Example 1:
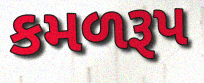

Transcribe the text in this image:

કમળરૂપ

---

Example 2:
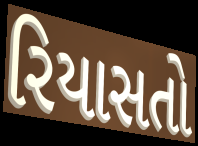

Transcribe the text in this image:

રિયાસતો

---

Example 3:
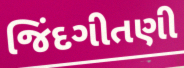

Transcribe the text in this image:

જિંદગીતણી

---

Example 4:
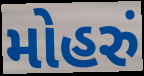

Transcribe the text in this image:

મોહરું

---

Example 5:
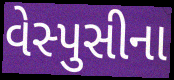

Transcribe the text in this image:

વેસ્પુસીના